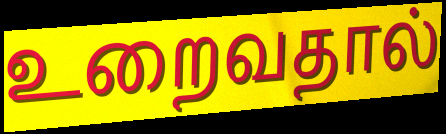
உறைவதால்